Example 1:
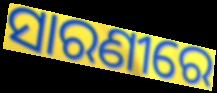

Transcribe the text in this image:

ସାରଣୀରେ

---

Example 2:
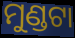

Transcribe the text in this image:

ମୁଣ୍ଡଟା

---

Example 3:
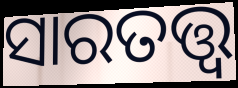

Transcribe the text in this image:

ସାରତତ୍ତ୍ଵ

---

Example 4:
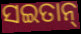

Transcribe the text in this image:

ସଇତାନ୍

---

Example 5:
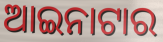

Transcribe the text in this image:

ଆଇନାଟାର